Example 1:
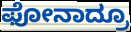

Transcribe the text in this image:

ಫೋನಾದ್ರೂ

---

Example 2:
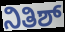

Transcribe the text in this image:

ನಿತಿಶ್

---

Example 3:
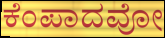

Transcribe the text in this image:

ಕೆಂಪಾದವೋ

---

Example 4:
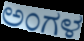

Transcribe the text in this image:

ಅಂಗಳ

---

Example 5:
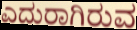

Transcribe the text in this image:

ಎದುರಾಗಿರುವ